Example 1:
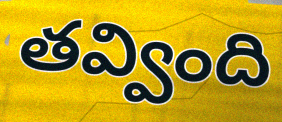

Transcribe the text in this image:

తవ్వింది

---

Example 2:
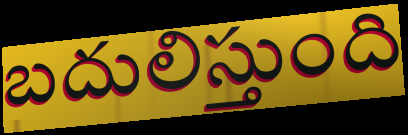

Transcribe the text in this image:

బదులిస్తుంది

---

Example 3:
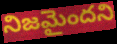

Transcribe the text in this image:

నిజమైందని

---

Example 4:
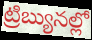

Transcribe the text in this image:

ట్రిబ్యునల్లో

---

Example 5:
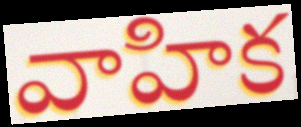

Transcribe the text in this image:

వాహిక